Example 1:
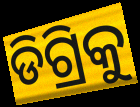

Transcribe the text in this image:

ଡିଗ୍ରିକୁ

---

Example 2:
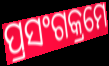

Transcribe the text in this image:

ପ୍ରସଂଗକ୍ରମେ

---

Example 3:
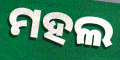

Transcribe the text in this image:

ମହଲ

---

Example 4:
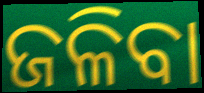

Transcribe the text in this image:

ଜଳିବା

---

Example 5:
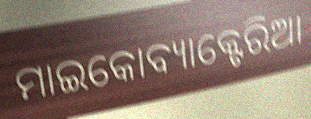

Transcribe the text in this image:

ମାଇକୋବ୍ୟାକ୍ଟେରିଆ